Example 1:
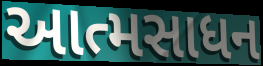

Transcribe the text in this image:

આત્મસાધન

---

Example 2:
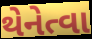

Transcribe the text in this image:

થેનેત્વા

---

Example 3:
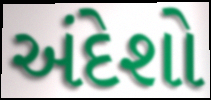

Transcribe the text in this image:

અંદેશો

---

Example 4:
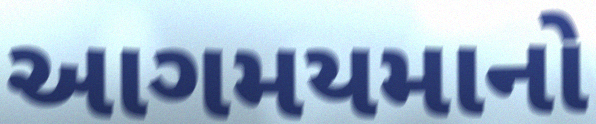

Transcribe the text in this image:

આગમયમાનો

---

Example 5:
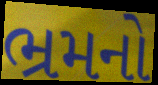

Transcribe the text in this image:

ભ્રમનો